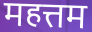
महत्तम